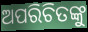
ଅପରିଚିତଙ୍କୁ